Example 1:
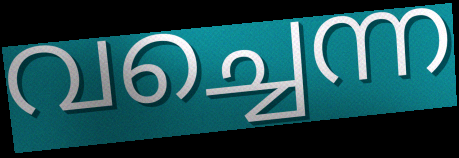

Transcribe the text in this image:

വച്ചെന്ന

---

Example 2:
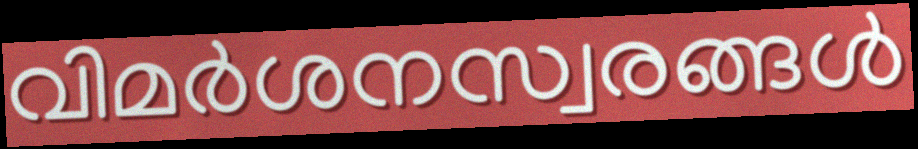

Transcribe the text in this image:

വിമർശനസ്വരങ്ങൾ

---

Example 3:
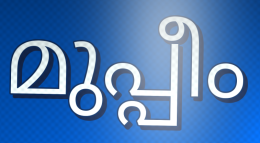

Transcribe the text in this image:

മുപ്പീം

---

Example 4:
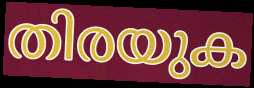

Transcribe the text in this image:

തിരയുക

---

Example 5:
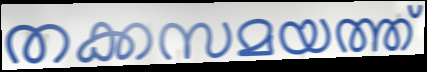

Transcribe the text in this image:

തക്കസമയത്ത്